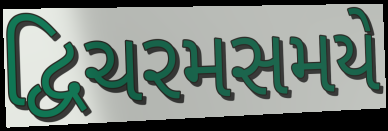
દ્વિચરમસમયે